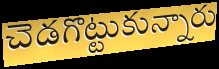
చెడగొట్టుకున్నారు